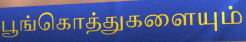
பூங்கொத்துகளையும்